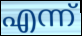
എന്ന്